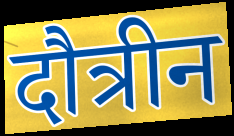
दौत्रीन